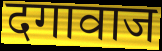
दगावाज